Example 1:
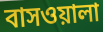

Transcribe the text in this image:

বাসওয়ালা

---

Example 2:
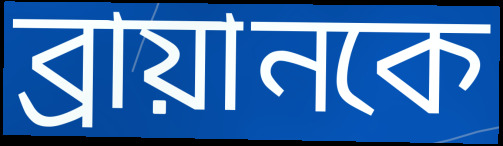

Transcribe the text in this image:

ব্রায়ানকে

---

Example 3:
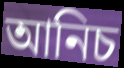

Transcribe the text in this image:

আনিচ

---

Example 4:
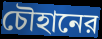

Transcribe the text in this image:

চৌহানের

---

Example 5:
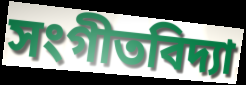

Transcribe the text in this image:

সংগীতবিদ্যা